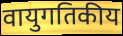
वायुगतिकीय